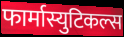
फार्मास्युटिकल्स